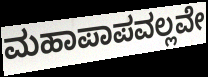
ಮಹಾಪಾಪವಲ್ಲವೇ